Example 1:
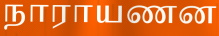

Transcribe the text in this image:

நாராயணன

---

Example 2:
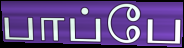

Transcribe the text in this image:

பாப்பே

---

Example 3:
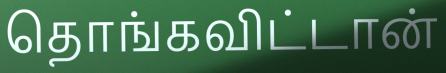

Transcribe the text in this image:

தொங்கவிட்டான்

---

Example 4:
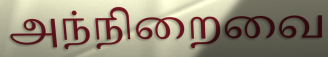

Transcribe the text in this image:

அந்நிறைவை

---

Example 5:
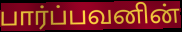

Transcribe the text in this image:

பார்ப்பவனின்